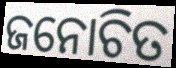
ଜନୋଚିତ